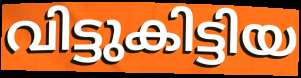
വിട്ടുകിട്ടിയ